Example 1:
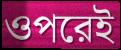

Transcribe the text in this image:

ওপরেই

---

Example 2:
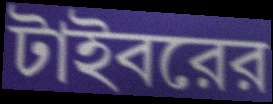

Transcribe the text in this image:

টাইবরের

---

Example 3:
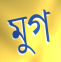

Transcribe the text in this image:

মুগ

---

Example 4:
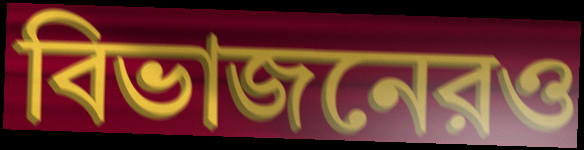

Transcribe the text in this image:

বিভাজনেরও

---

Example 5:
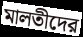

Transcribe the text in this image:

মালতীদের